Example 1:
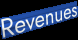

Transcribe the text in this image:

Revenues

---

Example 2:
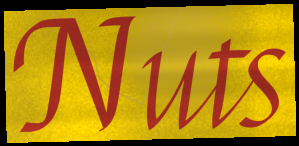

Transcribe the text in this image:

Nuts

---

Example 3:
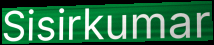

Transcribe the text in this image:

Sisirkumar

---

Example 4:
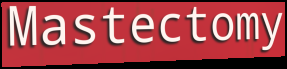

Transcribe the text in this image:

Mastectomy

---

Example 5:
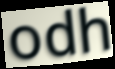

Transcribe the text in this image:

odh